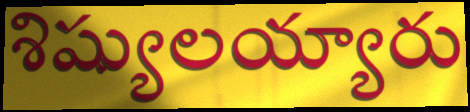
శిష్యులయ్యారు